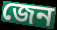
জেন